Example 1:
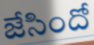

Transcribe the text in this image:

జేసిందో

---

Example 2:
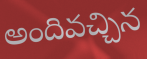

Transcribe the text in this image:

అందివచ్చిన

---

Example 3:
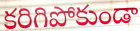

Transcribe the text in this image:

కరిగిపోకుండా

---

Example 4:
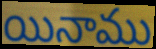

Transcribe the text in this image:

యినాము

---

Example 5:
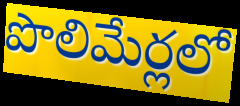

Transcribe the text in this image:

పొలిమేర్లలో